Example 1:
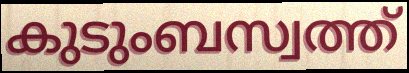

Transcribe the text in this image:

കുടുംബസ്വത്ത്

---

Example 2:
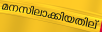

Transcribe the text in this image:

മനസിലാക്കിയതില്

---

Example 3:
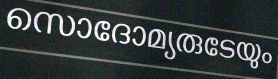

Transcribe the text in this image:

സൊദോമ്യരുടേയും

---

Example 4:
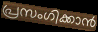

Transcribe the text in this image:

പ്രസംഗിക്കാൻ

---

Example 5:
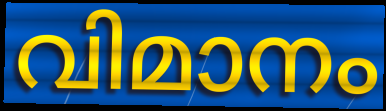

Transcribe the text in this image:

വിമാനം